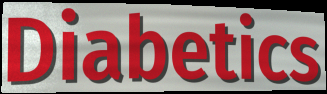
Diabetics